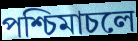
পশ্চিমাচলে